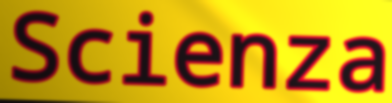
Scienza